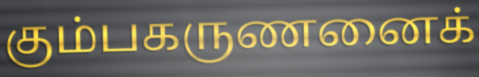
கும்பகருணனைக்